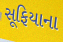
સૂફિયાના